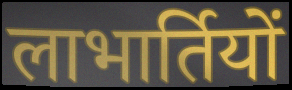
लाभार्तियों